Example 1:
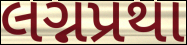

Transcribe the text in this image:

લગ્નપ્રથા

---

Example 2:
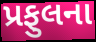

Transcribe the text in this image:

પ્રફુલના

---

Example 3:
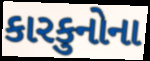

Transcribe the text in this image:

કારકુનોના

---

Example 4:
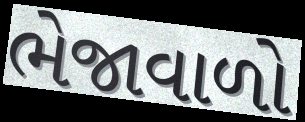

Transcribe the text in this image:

ભેજાવાળો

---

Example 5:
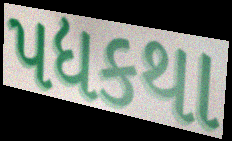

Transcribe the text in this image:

પદ્યકથા